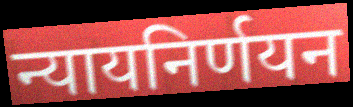
न्यायनिर्णयन